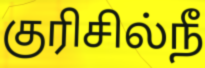
குரிசில்நீ